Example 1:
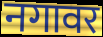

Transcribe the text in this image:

नगावर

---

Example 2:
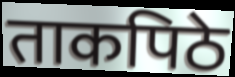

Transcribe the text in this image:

ताकपिठे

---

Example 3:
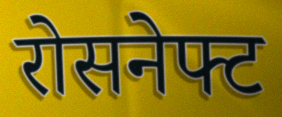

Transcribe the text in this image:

रोसनेफ्ट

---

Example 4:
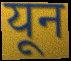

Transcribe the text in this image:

यून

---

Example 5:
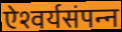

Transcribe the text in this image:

ऐश्वर्यसंपन्न